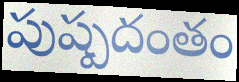
పుష్పదంతం